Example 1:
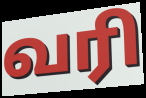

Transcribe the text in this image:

வரி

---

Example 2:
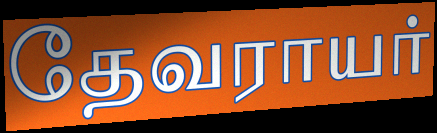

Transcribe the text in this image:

தேவராயர்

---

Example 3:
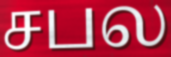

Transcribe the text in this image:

சபல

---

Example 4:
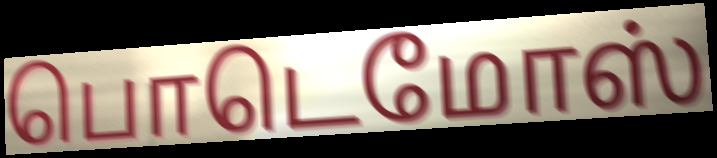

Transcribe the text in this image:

பொடெமோஸ்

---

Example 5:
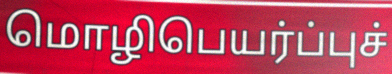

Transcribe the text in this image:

மொழிபெயர்ப்புச்